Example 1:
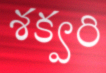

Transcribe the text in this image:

శక్వరి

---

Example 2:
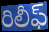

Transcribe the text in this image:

రిలీఫ్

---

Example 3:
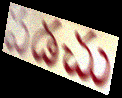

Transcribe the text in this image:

పడచు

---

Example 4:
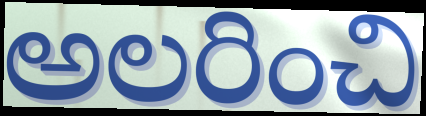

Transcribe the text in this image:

అలరించి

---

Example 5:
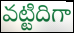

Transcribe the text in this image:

వట్టిదిగా